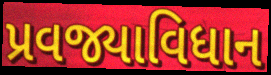
પ્રવજ્યાવિધાન